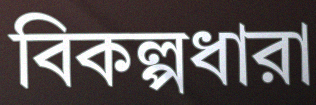
বিকল্পধারা